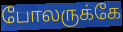
போலருக்கே